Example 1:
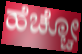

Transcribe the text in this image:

ಹೆಚ್ಚೋ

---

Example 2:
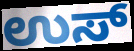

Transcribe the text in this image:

ಉಸ್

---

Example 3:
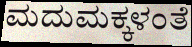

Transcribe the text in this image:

ಮದುಮಕ್ಕಳಂತೆ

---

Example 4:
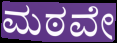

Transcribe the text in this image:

ಮಠವೇ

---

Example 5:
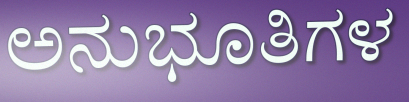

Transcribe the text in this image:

ಅನುಭೂತಿಗಳ